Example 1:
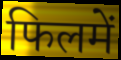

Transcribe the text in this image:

फिलमें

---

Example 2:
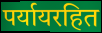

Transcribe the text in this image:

पर्यायरहित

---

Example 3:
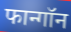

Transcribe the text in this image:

फान्गॉन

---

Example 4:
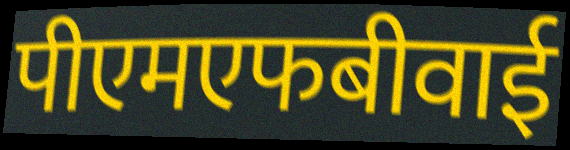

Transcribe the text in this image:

पीएमएफबीवाई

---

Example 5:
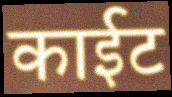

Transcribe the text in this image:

काईट